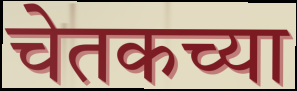
चेतकच्या